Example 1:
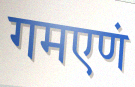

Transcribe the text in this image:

गमएणं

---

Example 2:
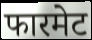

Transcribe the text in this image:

फारमेट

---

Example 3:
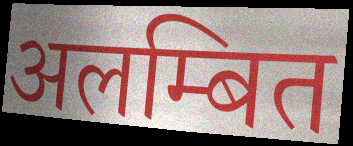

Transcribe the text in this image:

अलम्बित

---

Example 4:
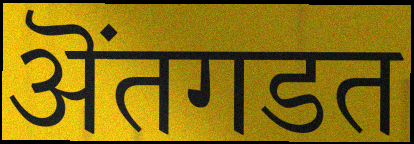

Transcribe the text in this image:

ऄंतगडत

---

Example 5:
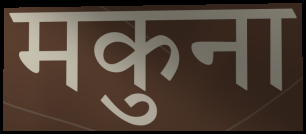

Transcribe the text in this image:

मकुना